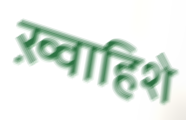
ख़्वाहिशे